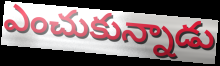
ఎంచుకున్నాడు